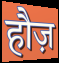
हौज़